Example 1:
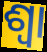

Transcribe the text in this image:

ଶ୍ୱା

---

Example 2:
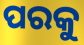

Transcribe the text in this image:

ପରକୁ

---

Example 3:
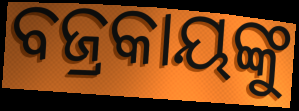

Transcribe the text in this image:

ବଜ୍ରକାୟଙ୍କୁ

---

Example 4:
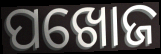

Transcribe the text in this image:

ପଖୋଜ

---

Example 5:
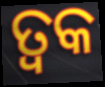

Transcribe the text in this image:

ତ୍ୱକ